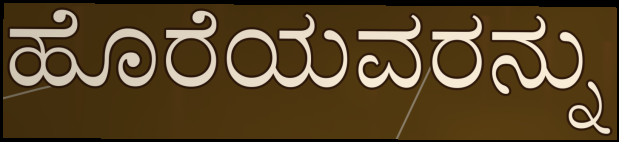
ಹೊರೆಯವರನ್ನು